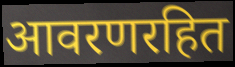
आवरणरहित